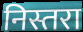
निस्तरा